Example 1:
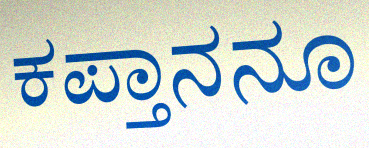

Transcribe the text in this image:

ಕಪ್ತಾನನೂ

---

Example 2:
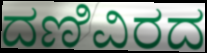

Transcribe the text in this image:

ದಣಿವಿರದ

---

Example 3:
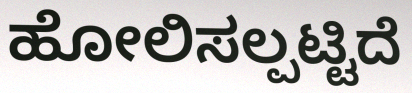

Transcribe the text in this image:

ಹೋಲಿಸಲ್ಪಟ್ಟಿದೆ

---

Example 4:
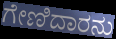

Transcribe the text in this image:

ಗೇಣಿದಾರನು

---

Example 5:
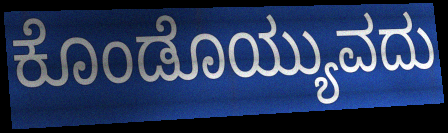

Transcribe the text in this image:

ಕೊಂಡೊಯ್ಯುವದು